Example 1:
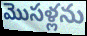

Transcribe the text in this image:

మొసళ్లను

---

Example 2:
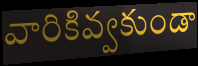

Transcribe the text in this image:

వారికివ్వకుండా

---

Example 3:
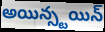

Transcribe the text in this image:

అయిన్స్టయిన్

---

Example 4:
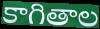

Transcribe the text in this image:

కాగితాల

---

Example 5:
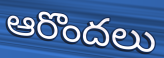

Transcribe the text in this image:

ఆరొందలు